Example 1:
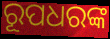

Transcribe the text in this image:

ରୂପଧରଙ୍କ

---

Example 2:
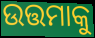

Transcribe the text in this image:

ଉତ୍ତମାକୁ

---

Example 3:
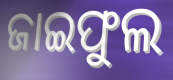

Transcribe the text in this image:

ଜାଇଫୁଲ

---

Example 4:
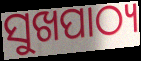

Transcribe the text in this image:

ସୁଖପାଠ୍ୟ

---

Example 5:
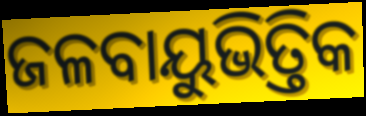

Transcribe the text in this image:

ଜଳବାୟୁଭିତ୍ତିକ